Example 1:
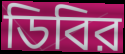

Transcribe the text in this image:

ডিবির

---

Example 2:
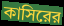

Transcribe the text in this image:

কাসিরের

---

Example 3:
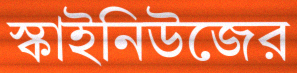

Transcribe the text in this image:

স্কাইনিউজের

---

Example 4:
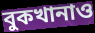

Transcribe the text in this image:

বুকখানাও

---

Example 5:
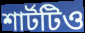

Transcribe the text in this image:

শার্টটিও